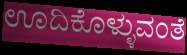
ಊದಿಕೊಳ್ಳುವಂತೆ